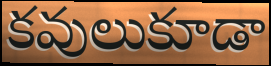
కవులుకూడా